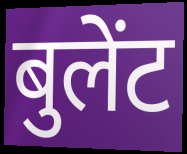
बुलेंट